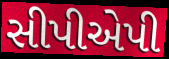
સીપીએપી